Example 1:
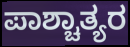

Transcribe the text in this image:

ಪಾಶ್ಚಾತ್ಯರ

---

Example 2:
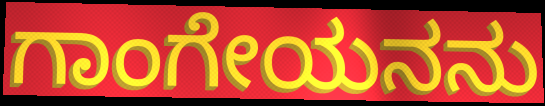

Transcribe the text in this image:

ಗಾಂಗೇಯನನು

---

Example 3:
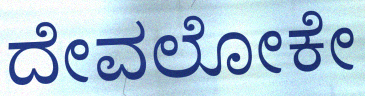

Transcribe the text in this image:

ದೇವಲೋಕೇ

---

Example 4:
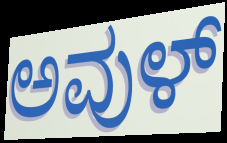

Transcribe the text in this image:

ಅವುಳ್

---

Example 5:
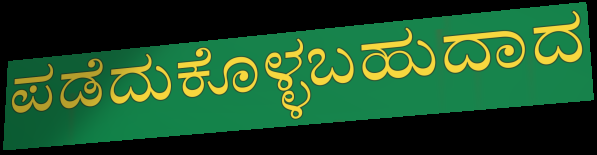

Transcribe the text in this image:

ಪಡೆದುಕೊಳ್ಳಬಹುದಾದ